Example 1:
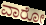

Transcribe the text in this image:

ವಾರೋ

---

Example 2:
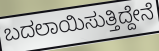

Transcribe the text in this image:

ಬದಲಾಯಿಸುತ್ತಿದ್ದೇನೆ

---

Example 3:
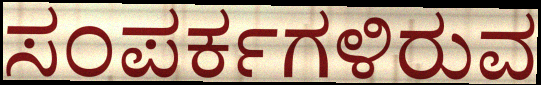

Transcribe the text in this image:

ಸಂಪರ್ಕಗಳಿರುವ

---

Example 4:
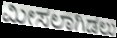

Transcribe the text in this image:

ಮೀಸಲಾಗಿಡಲು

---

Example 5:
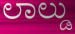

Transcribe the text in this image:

ಲಾಲ್ಡು